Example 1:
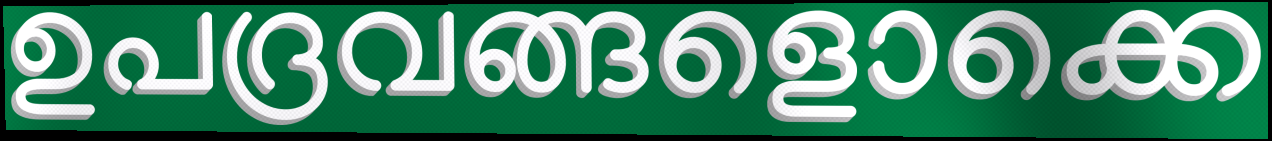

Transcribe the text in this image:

ഉപദ്രവങ്ങളൊക്കെ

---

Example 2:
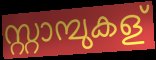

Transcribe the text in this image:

സ്റ്റാമ്പുകള്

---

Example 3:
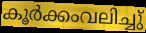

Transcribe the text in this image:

കൂർക്കംവലിച്ചു്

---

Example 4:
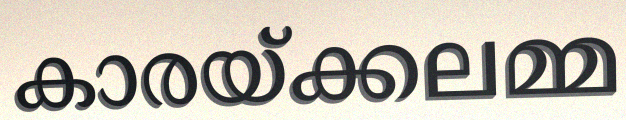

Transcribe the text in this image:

കാരയ്ക്കലമ്മ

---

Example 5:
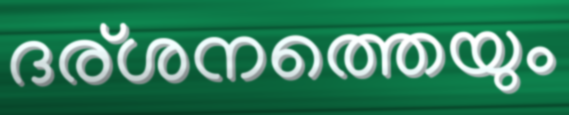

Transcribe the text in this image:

ദര്ശനത്തെയും